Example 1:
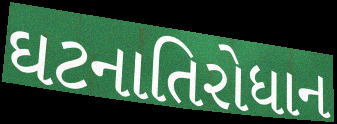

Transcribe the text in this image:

ઘટનાતિરોધાન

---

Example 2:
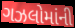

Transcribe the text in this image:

ગઝલોમાંની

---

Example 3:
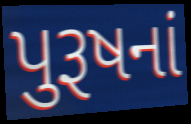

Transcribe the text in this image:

પુરૂષનાં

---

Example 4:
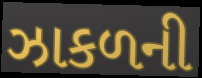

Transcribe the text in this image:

ઝાકળની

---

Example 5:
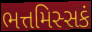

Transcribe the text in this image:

ભત્તમિસ્સકં